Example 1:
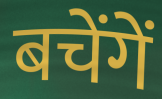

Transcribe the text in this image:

बचेंगें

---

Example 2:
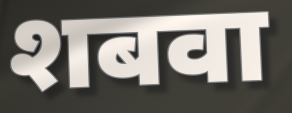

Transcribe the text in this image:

शबवा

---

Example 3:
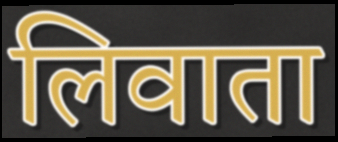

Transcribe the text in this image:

लिवाता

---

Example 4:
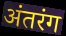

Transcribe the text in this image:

अंतरंग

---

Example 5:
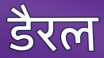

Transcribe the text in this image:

डैरल